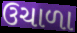
ઉચાળા